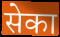
सेका